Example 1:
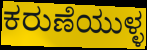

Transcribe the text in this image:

ಕರುಣೆಯುಳ್ಳ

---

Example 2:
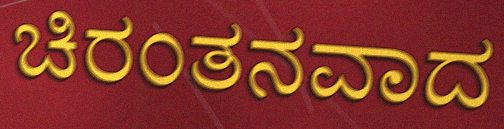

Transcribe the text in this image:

ಚಿರಂತನವಾದ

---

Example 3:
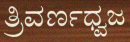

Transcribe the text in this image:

ತ್ರಿವರ್ಣಧ್ವಜ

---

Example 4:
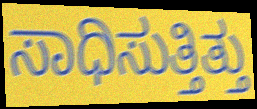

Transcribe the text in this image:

ಸಾಧಿಸುತ್ತಿತ್ತು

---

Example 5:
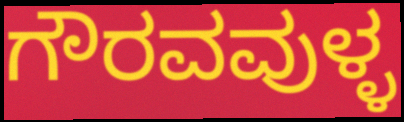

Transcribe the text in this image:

ಗೌರವವುಳ್ಳ